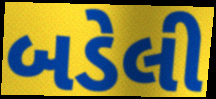
બડેલી